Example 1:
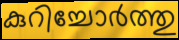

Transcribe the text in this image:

കുറിച്ചോർത്തു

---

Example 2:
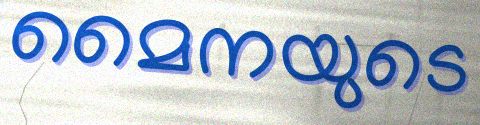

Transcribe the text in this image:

മൈനയുടെ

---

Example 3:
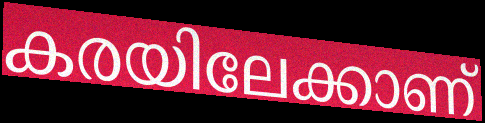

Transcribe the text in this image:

കരയിലേക്കാണ്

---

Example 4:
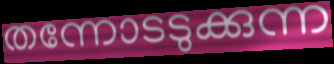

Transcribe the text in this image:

തന്നോടടുക്കുന്ന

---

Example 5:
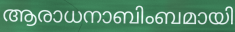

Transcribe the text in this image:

ആരാധനാബിംബമായി